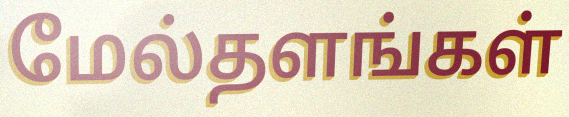
மேல்தளங்கள்